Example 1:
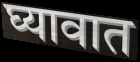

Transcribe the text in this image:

घ्यावात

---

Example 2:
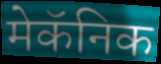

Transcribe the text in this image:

मेकॅनिक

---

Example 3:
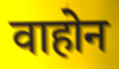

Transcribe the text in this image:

वाहोन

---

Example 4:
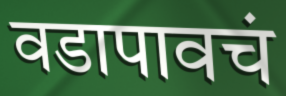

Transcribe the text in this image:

वडापावचं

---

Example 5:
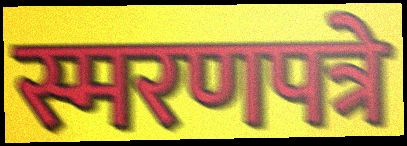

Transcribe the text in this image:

स्मरणपत्रे